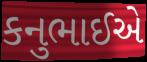
કનુભાઈએ